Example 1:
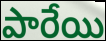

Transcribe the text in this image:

పారేయి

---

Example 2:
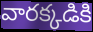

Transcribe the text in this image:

వారక్కడికి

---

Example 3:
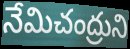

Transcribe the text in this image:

నేమిచంద్రుని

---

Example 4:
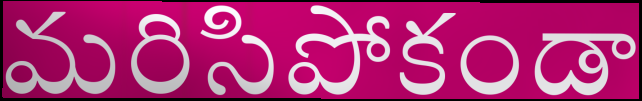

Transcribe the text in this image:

మరిసిపోకండా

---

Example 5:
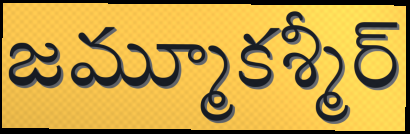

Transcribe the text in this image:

జమ్మూకశ్మీర్